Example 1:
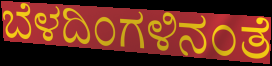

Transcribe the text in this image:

ಬೆಳದಿಂಗಳಿನಂತೆ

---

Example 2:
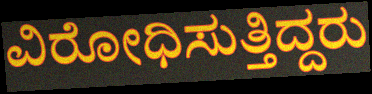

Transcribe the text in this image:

ವಿರೋಧಿಸುತ್ತಿದ್ದರು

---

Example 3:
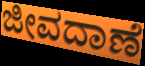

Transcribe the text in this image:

ಜೀವದಾಣೆ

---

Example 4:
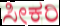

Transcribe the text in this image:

ಸೀಕರಿ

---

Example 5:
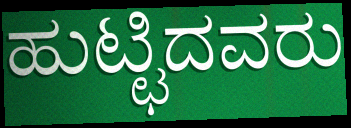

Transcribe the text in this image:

ಹುಟ್ಟಿದವರು